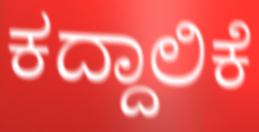
ಕದ್ದಾಲಿಕೆ